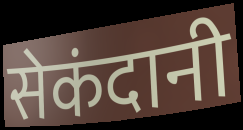
सेकंदानी